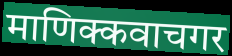
माणिक्कवाचगर